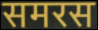
समरस